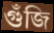
গুঁজি